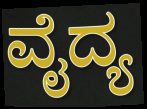
ವೈದ್ಯ